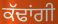
ਕੱਢਾਂਗੀ